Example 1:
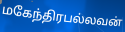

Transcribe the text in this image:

மகேந்திரபல்லவன்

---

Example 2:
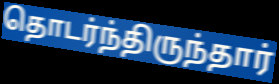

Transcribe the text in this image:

தொடர்ந்திருந்தார்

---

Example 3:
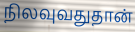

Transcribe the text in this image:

நிலவுவதுதான்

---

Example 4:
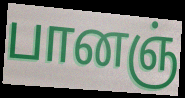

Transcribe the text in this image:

பானஞ்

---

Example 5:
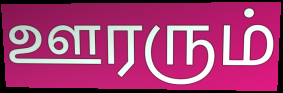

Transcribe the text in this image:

ஊரரும்